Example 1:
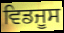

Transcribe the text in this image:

ਵਿਡਜੂਸ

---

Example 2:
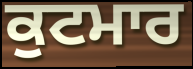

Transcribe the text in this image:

ਕੁਟਮਾਰ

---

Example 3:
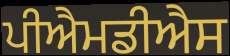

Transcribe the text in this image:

ਪੀਐਮਡੀਐਸ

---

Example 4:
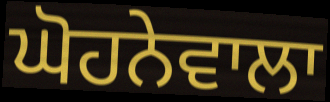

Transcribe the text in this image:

ਘੋਹਨੇਵਾਲਾ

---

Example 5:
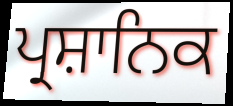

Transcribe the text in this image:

ਪ੍ਰਸ਼ਾਨਿਕ